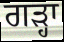
ਗੜ੍ਹਾ